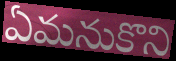
ఏమనుకొని